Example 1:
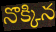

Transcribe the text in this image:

నొక్కిన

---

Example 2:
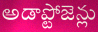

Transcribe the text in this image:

అడాప్టోజెన్లు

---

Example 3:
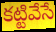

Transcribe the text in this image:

కట్టివేసే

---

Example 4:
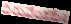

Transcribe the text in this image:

దిరువేంకటేశ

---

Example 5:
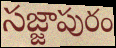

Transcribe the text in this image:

సజ్జాపురం